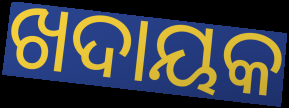
ଖଦାୟକ